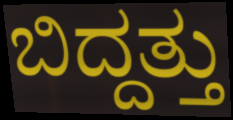
ಬಿದ್ದತ್ತು